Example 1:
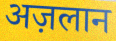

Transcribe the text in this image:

अज़लान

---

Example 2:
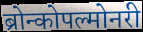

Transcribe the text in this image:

ब्रोन्कोपल्मोनरी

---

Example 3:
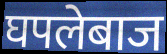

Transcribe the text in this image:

घपलेबाज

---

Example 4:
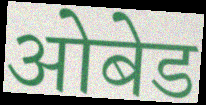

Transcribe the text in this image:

ओबेड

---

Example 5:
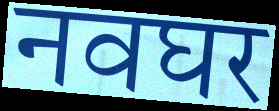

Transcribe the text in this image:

नवघर